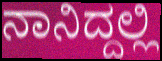
ನಾನಿದ್ದಲ್ಲಿ